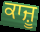
ਕਾਜ਼ੂ